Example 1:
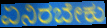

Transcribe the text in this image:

ಏನಿರಬೇಕು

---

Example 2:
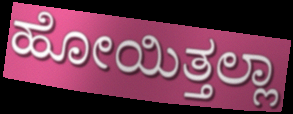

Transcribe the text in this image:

ಹೋಯಿತ್ತಲ್ಲಾ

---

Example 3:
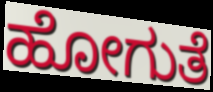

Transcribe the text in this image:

ಹೋಗುತೆ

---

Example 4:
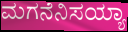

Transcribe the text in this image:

ಮಗನೆನಿಸಯ್ಯಾ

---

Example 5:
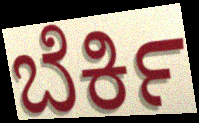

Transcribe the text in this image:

ಬೆರ್ಕಿ